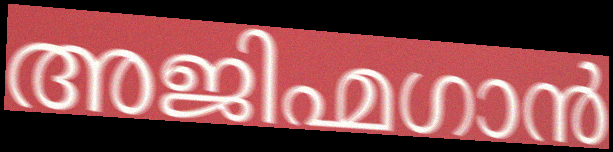
അജിഹ്മഗാൻ